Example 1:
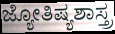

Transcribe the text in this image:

ಜ್ಯೋತಿಷ್ಯಶಾಸ್ತ್ರ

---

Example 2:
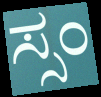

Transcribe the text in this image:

ಸ್ಸಂ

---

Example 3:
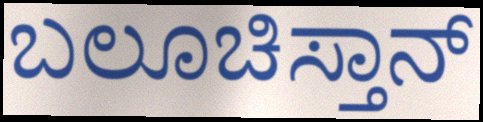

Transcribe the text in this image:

ಬಲೂಚಿಸ್ತಾನ್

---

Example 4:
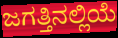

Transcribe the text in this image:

ಜಗತ್ತಿನಲ್ಲಿಯೆ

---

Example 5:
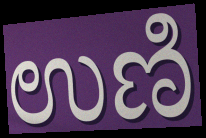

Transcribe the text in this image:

ಉಣಿ